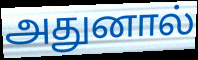
அதுனால்